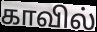
காவில்